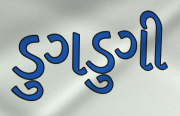
ડુગડુગી